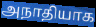
அநாதியாக